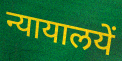
न्यायालयें